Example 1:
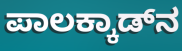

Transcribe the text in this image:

ಪಾಲಕ್ಕಾಡ್‌ನ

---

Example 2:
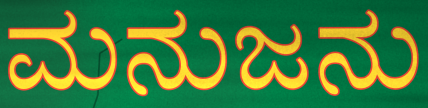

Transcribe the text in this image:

ಮನುಜನು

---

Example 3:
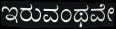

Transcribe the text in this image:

ಇರುವಂಥವೇ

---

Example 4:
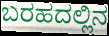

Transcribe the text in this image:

ಬರಹದಲ್ಲಿನ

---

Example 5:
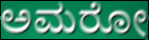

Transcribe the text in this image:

ಅಮರೋ